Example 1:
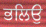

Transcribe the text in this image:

ਭਲਿਉ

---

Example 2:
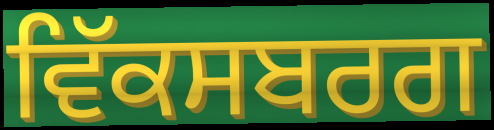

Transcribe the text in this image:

ਵਿੱਕਸਬਰਗ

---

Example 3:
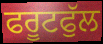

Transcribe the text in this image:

ਫਰੂਟਫੁੱਲ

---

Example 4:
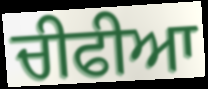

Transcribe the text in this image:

ਚੀਫੀਆ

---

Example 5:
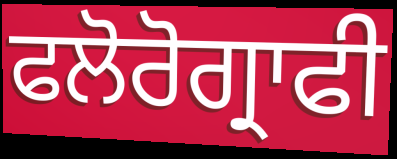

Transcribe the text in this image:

ਫਲੋਰੋਗ੍ਰਾਫੀ